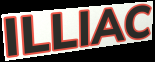
ILLIAC